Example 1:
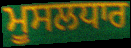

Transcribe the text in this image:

ਮੂਸਲਧਾਰ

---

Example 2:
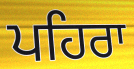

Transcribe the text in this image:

ਪਹਿਰਾ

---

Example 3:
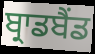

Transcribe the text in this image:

ਬ੍ਰਾਡਬੈਂਡ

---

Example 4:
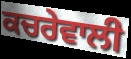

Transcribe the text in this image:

ਕਚਰੇਵਾਲੀ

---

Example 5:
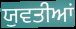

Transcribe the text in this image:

ਯੁਵਤੀਆਂ